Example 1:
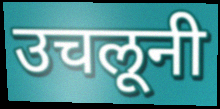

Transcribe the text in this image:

उचलूनी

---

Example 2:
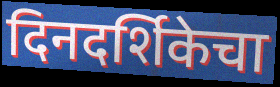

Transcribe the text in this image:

दिनदर्शिकेचा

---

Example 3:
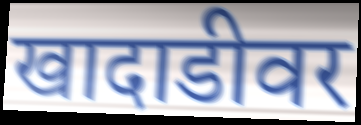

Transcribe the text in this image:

खादाडीवर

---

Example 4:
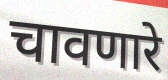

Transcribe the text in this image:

चावणारे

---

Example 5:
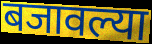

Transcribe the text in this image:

बजावल्या